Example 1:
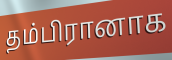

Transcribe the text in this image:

தம்பிரானாக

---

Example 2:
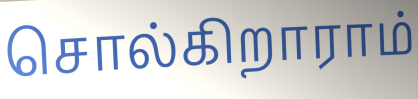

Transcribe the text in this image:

சொல்கிறாராம்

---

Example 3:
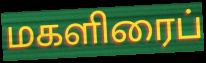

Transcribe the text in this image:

மகளிரைப்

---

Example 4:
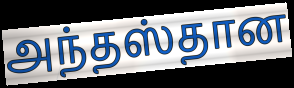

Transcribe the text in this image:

அந்தஸ்தான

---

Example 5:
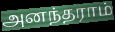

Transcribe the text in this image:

அனந்தராம்